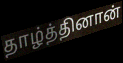
தாழ்த்தினான்